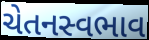
ચેતનસ્વભાવ